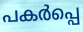
പകർപ്പെ